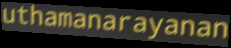
uthamanarayanan